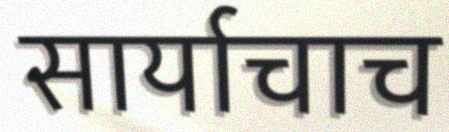
सार्याचाच